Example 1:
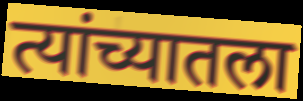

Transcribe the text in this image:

त्यांच्यातला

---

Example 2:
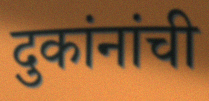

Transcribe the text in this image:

दुकांनांची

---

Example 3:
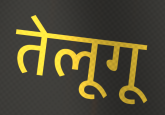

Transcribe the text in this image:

तेलूगू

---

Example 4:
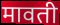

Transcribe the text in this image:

मावती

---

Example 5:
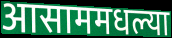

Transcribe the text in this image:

आसाममधल्या